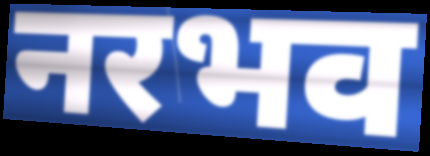
नरभव